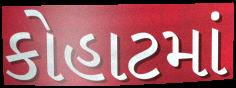
કોહાટમાં